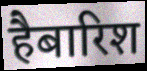
हैबारिश